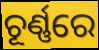
ଚୂର୍ଣ୍ଣରେ